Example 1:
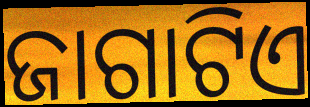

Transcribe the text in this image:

ଜାଗାଟିଏ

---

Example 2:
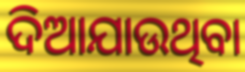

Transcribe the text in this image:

ଦିଆଯାଉଥିବା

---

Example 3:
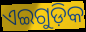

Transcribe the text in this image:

ଏଇଗୁଡ଼ିକ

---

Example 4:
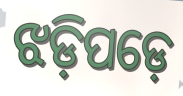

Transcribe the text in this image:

ଝଡ଼ିପଡ଼େ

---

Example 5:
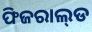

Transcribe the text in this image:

ଫିଜରାଲ୍‌ଡ